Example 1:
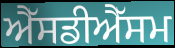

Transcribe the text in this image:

ਐੱਸਡੀਐੱਸਮ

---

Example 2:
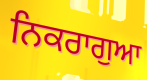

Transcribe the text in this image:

ਨਿਕਰਾਗੁਆ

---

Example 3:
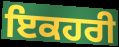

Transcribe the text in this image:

ਇਕਹਰੀ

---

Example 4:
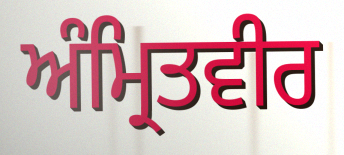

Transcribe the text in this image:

ਅੰਮ੍ਰਿਤਵੀਰ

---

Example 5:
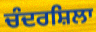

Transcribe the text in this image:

ਚੰਦਰਸ਼ਿਲਾ